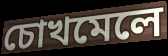
চোখমেলে